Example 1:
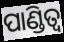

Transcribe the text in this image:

ପାଣ୍ଡିତ୍ୱ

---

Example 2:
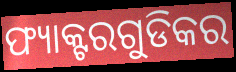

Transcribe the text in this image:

ଫ୍ୟାକ୍ଟରଗୁଡିକର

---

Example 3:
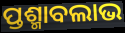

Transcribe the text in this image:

ପ୍ତଶ୍ମାବଲାଭ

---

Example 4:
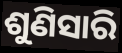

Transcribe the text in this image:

ଶୁଣିସାରି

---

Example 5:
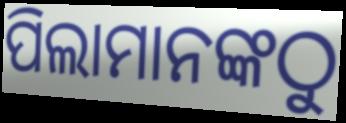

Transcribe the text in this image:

ପିଲାମାନଙ୍କଠୁ